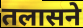
तलासने